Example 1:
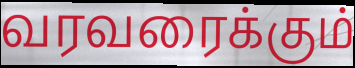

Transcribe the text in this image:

வரவரைக்கும்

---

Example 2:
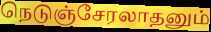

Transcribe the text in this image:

நெடுஞ்சேரலாதனும்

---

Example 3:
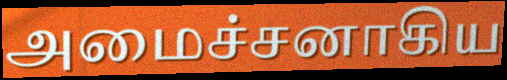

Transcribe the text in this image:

அமைச்சனாகிய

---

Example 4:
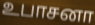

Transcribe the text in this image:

உபாசனா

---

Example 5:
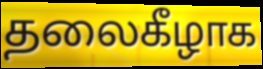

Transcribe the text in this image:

தலைகீழாக